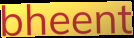
bheent